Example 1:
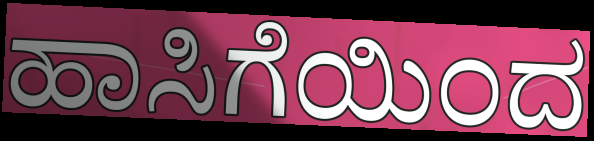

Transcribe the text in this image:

ಹಾಸಿಗೆಯಿಂದ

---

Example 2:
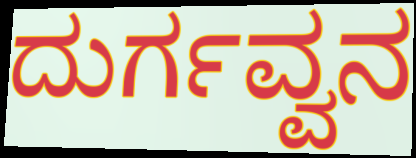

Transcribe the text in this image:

ದುರ್ಗವ್ವನ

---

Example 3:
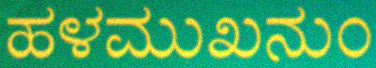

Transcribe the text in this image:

ಹಳಮುಖನುಂ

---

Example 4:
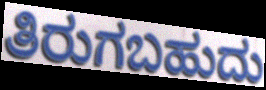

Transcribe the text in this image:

ತಿರುಗಬಹುದು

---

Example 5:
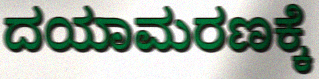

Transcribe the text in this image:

ದಯಾಮರಣಕ್ಕೆ